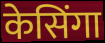
केसिंगा